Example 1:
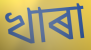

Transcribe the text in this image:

খাৰা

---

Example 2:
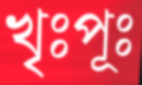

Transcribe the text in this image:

খৃঃপূঃ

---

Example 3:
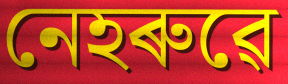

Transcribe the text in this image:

নেহৰুৱে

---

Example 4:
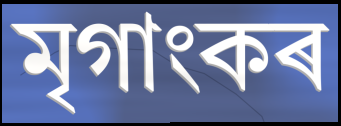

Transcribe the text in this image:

মৃগাংকৰ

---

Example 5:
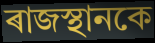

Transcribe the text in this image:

ৰাজস্থানকে